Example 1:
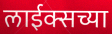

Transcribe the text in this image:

लाईक्सच्या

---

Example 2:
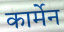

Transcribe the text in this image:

कार्मेन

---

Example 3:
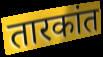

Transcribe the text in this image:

तारकांत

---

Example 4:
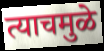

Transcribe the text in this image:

त्याचमुळे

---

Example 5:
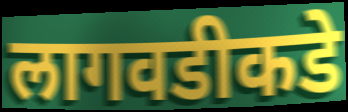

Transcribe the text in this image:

लागवडीकडे